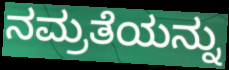
ನಮ್ರತೆಯನ್ನು